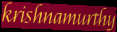
krishnamurthy